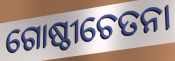
ଗୋଷ୍ଠୀଚେତନା